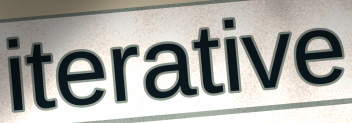
iterative